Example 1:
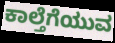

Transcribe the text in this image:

ಕಾಲ್ತೆಗೆಯುವ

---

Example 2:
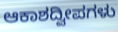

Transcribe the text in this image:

ಆಕಾಶದ್ವೀಪಗಳು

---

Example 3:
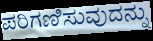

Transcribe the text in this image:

ಪರಿಗಣಿಸುವುದನ್ನು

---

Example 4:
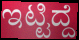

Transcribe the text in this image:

ಇಟ್ಟಿದ್ದೆ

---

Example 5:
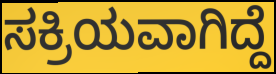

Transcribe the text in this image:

ಸಕ್ರಿಯವಾಗಿದ್ದೆ